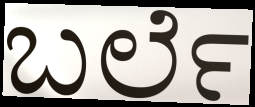
ಬರ್ಲೆ